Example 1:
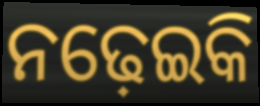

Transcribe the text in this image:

ନଢ଼େଇକି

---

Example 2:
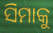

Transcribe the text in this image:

ସିମାକୁ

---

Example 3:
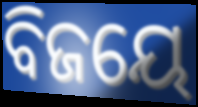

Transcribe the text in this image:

ବିଜୟେ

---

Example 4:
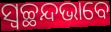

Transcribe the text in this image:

ସ୍ୱଚ୍ଛନ୍ଦଭାବେ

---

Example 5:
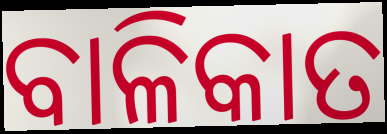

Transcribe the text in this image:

ବାଳିକାତ